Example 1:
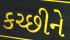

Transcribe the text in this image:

કચ્છીને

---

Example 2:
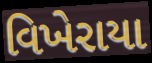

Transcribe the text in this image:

વિખેરાયા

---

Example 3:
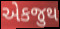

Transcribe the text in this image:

એકજુથ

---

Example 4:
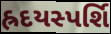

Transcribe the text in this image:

હ્રદયસ્પર્શિ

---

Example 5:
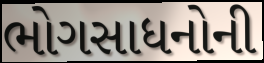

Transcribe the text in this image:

ભોગસાધનોની